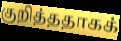
குறித்ததாகக்